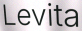
Levita